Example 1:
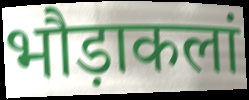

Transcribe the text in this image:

भौड़ाकलां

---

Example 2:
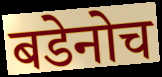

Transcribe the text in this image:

बडेनोच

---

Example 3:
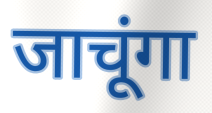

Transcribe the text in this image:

जाचूंगा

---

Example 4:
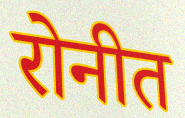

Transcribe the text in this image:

रोनीत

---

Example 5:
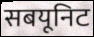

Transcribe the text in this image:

सबयूनिट